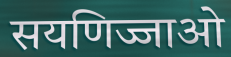
सयणिज्जाओ